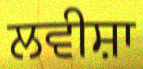
ਲਵੀਸ਼ਾ